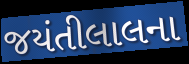
જયંતીલાલના